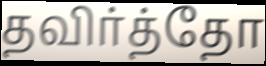
தவிர்த்தோ